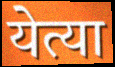
येत्या